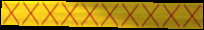
xxxxxxxxxx